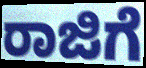
ರಾಜಿಗೆ